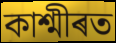
কাশ্মীৰত